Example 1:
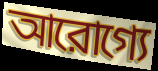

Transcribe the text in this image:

আরোগ্যে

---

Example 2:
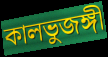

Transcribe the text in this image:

কালভুজঙ্গী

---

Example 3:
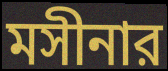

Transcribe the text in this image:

মসীনার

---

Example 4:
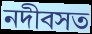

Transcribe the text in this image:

নদীবসত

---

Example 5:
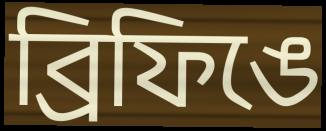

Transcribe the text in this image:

ব্রিফিঙে